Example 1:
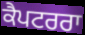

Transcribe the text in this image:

ਕੈਪਟਰਰਾ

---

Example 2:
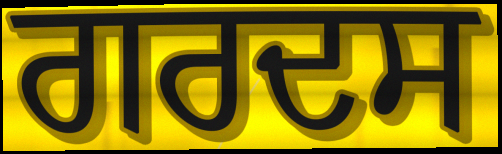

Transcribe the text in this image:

ਗਰਦਸ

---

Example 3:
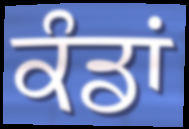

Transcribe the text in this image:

ਕੰਡਾਂ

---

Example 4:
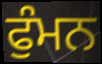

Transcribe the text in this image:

ਫੁੰਮਨ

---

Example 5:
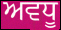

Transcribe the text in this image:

ਅਵਧੂ